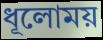
ধূলোময়